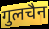
गुलचैन